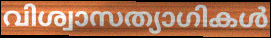
വിശ്വാസത്യാഗികൾ